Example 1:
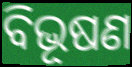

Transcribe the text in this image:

ବିଭୂଷଣ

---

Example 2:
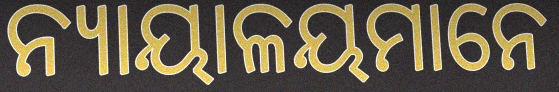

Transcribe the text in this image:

ନ୍ୟାୟାଳୟମାନେ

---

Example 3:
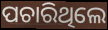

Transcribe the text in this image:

ପଚାରିଥିଲେ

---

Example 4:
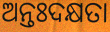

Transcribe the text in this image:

ଅନ୍ତଃଦକ୍ଷତା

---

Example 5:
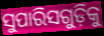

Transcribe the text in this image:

ସୁପାରିସଗୁଡ଼ିକୁ